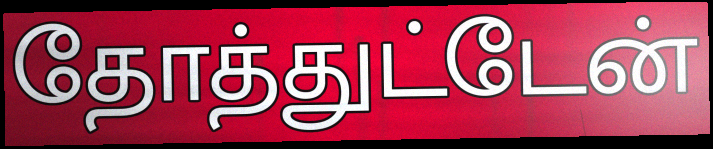
தோத்துட்டேன்